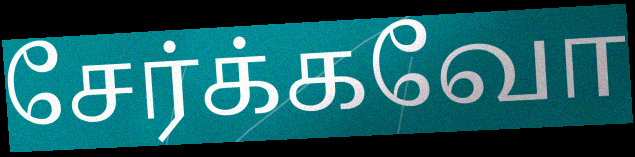
சேர்க்கவோ